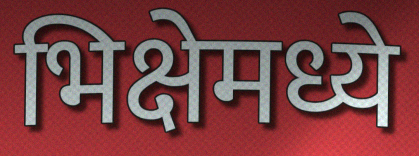
भिक्षेमध्ये